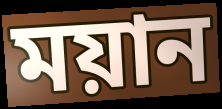
ময়ান